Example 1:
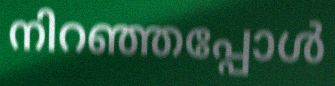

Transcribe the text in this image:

നിറഞ്ഞപ്പോൾ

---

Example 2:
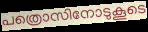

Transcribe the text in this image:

പത്രൊസിനോടുകൂടെ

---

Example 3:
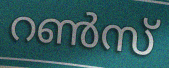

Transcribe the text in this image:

റൺസ്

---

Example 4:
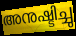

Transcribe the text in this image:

അനുഷ്ടിച്ചു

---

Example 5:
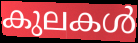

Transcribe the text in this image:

കുലകൾ